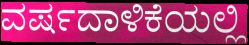
ವರ್ಷದಾಳಿಕೆಯಲ್ಲಿ